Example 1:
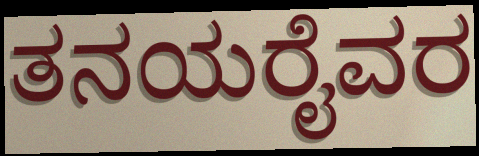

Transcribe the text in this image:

ತನಯರೈವರ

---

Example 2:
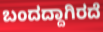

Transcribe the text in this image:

ಬಂದದ್ದಾಗಿರದೆ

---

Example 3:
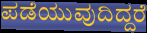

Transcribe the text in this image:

ಪಡೆಯುವುದಿದ್ದರೆ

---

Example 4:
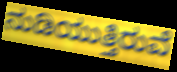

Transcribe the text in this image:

ನುಡಿಯುತ್ತಿರುವೆ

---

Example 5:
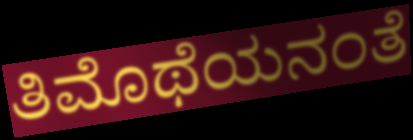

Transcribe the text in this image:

ತಿಮೊಥೆಯನಂತೆ